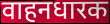
वाहनधारक